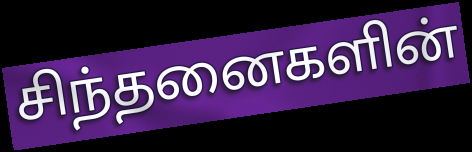
சிந்தனைகளின்